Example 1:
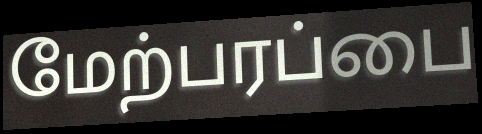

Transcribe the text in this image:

மேற்பரப்பை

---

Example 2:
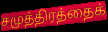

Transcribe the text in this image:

சமுத்திரத்தைக்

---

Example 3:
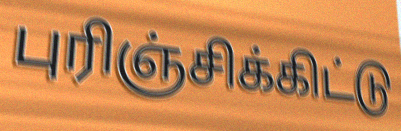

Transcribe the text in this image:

புரிஞ்சிக்கிட்டு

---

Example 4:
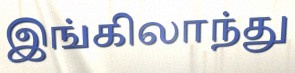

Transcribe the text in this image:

இங்கிலாந்து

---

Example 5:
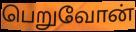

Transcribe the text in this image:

பெறுவோன்